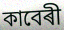
কাবেৰী